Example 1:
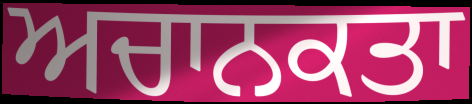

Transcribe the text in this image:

ਅਚਾਨਕਤਾ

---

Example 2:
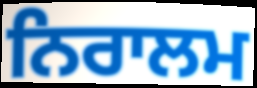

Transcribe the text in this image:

ਨਿਰਾਲਮ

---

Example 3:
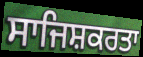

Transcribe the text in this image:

ਸਾਜਿਸ਼ਕਰਤਾ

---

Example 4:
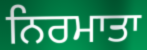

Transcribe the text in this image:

ਨਿਰਮਾਤਾ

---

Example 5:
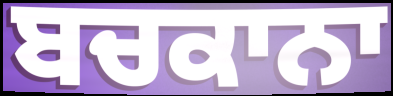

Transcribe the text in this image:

ਬਚਕਾਨਾ